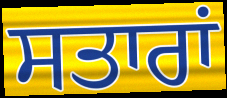
ਸਤਾਰਾਂ